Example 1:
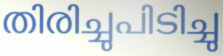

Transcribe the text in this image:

തിരിച്ചുപിടിച്ചു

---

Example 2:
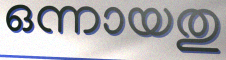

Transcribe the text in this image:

ഒന്നായതു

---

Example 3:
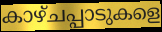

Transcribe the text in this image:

കാഴ്ചപ്പാടുകളെ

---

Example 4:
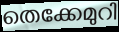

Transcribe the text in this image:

തെക്കേമുറി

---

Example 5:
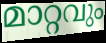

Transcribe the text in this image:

മാറ്റവും